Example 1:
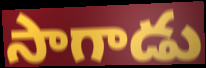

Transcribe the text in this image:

సాగాడు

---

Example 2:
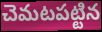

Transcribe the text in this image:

చెమటపట్టిన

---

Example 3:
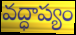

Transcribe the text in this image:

వద్ధాప్యం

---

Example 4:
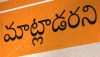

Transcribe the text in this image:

మాట్లాడరని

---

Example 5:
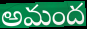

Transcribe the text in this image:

అమంద